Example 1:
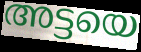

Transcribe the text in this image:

അട്ടയെ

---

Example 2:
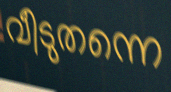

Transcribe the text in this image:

വീടുതന്നെ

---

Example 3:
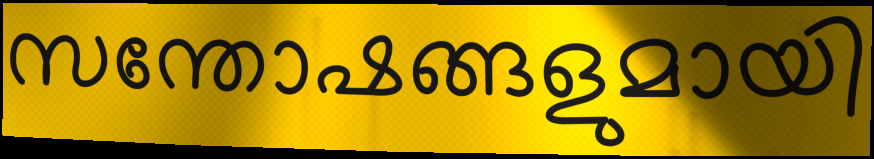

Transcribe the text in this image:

സന്തോഷങ്ങളുമായി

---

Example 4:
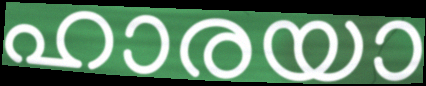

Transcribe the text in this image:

ഹാരയാ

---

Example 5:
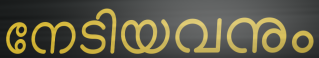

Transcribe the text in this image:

നേടിയവനും